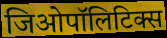
जिओपॉलिटिक्स